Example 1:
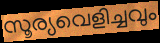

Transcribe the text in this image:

സൂര്യവെളിച്ചവും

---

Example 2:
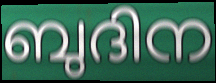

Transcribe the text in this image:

ബുദിന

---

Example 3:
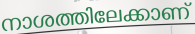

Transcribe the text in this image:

നാശത്തിലേക്കാണ്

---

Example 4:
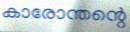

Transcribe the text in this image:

കാരോന്തന്റെ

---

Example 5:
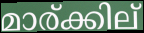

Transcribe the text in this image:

മാര്ക്കില്